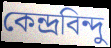
কেন্দ্রবিন্দু